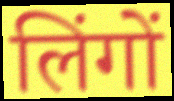
लिंगों